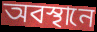
অবস্থানে